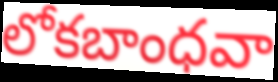
లోకబాంధవా